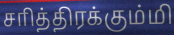
சரித்திரக்கும்மி